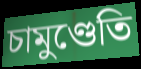
চামুণ্ডেতি